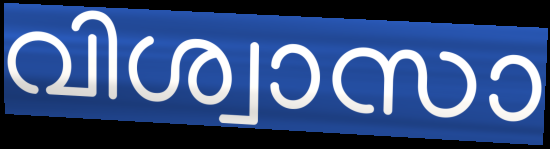
വിശ്വാസാ